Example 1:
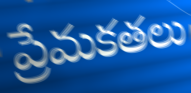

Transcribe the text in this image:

ప్రేమకతలు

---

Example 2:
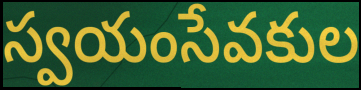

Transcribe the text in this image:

స్వయంసేవకుల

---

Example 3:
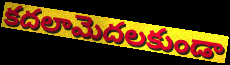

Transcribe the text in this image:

కదలామెదలకుండా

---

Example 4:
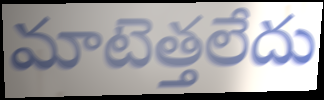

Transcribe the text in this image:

మాటెత్తలేదు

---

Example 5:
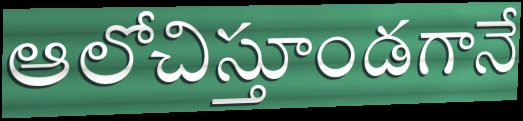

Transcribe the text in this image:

ఆలోచిస్తూండగానే